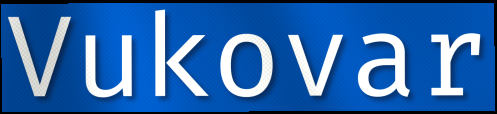
Vukovar